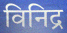
विनिद्र